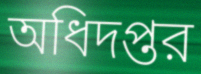
অধিদপ্তর